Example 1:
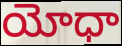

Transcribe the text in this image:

యోధా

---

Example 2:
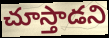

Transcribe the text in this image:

చూస్తాడని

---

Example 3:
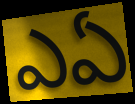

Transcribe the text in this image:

ఎఏ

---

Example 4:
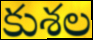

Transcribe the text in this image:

కుశల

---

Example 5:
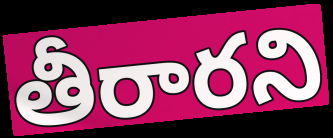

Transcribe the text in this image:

తీరారని